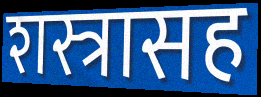
शस्त्रासह